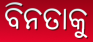
ବିନତାକୁ